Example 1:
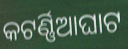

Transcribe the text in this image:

କଟର୍ଣ୍ଣିଆଘାଟ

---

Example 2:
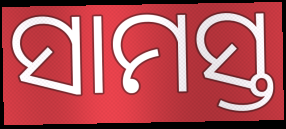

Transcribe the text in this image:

ସାମସ୍ତ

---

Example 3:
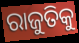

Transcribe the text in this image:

ରାଜୁତିକୁ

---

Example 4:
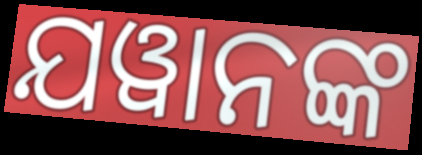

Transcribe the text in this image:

ଯୱାନଙ୍କ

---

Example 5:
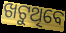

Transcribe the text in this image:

ଖଟୁଥିବେ